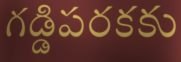
గడ్డిపరకకు